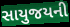
સાયુજયની